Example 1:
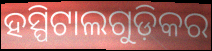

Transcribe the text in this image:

ହସ୍ପିଟାଲଗୁଡ଼ିକର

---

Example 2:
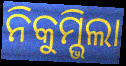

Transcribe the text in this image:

ନିକୁମ୍ଭିଲା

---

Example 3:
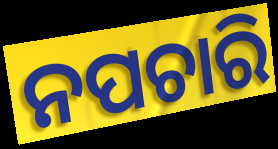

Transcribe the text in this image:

ନପଚାରି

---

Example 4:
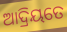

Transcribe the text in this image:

ଆଦ୍ରିୟତେ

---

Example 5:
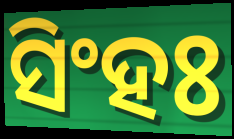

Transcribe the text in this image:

ସିଂହଃ